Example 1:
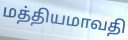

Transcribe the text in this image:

மத்தியமாவதி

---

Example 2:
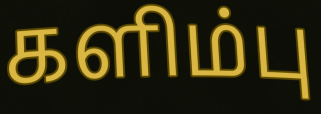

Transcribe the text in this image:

களிம்பு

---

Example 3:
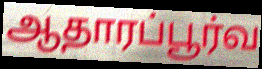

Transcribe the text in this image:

ஆதாரப்பூர்வ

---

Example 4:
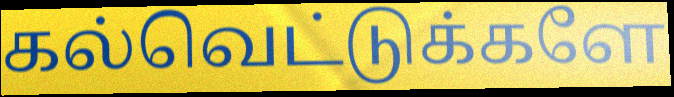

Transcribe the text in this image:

கல்வெட்டுக்களே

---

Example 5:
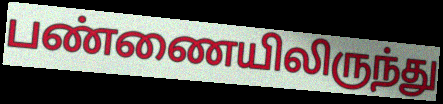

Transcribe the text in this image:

பண்ணையிலிருந்து